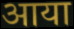
आया